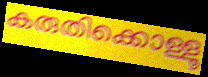
കരുതിക്കൊള്ളൂ